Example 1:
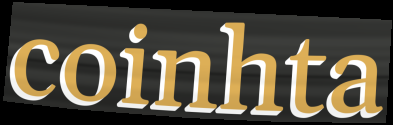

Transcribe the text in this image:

coinhta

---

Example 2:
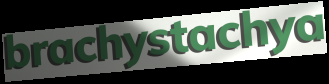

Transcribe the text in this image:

brachystachya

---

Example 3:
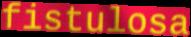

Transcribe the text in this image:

fistulosa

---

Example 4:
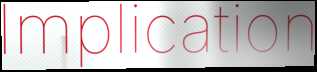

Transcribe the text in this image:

Implication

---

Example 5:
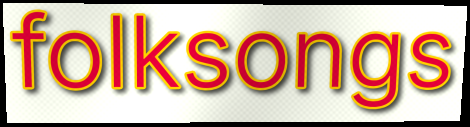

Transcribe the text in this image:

folksongs